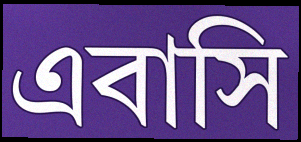
এবাসি